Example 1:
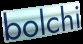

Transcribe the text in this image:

bolchi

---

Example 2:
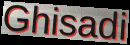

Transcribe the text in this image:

Ghisadi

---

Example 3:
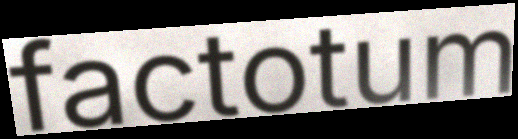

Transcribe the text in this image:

factotum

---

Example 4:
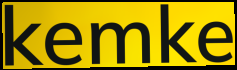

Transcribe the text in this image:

kemke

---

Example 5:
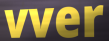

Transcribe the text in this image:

vver